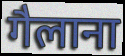
गैलाना